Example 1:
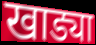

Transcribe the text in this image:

खाड्या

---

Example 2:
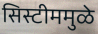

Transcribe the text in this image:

सिस्टीममुळे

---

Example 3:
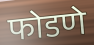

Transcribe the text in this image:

फोडणे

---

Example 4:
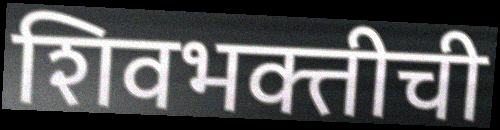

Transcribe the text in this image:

शिवभक्तीची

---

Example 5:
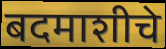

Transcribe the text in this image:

बदमाशीचे